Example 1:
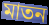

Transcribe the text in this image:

মাতন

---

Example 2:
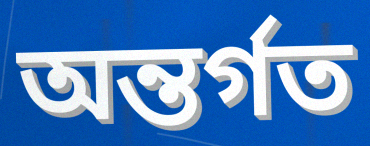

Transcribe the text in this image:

অন্তর্গত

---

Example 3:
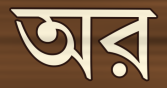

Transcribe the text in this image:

অর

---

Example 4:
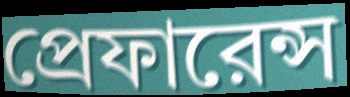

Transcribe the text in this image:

প্রেফারেন্স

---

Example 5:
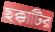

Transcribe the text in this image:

ছক্কাটির